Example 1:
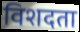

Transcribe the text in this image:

विशदता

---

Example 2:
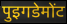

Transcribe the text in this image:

पुइगडेमोंट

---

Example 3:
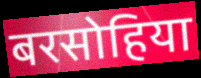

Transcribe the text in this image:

बरसोहिया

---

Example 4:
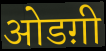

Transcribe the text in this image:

ओडग़ी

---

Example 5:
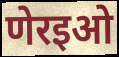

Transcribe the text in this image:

णेरइओ